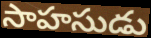
సాహసుడు